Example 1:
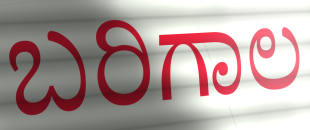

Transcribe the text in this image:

ಬರಿಗಾಲ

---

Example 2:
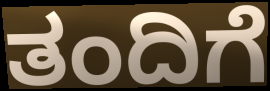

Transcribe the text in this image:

ತಂದಿಗೆ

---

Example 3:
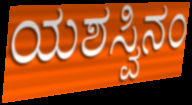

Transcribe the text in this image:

ಯಶಸ್ವಿನಂ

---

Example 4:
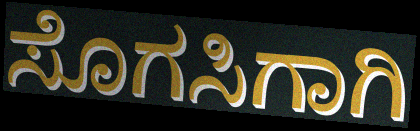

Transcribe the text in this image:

ಸೊಗಸಿಗಾಗಿ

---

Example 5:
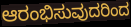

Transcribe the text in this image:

ಆರಂಭಿಸುವುದರಿಂದ